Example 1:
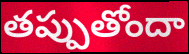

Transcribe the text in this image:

తప్పుతోందా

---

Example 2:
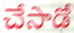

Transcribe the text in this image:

చేసాడో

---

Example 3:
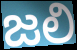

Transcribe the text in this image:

జలి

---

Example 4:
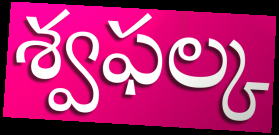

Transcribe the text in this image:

శ్వఫల్క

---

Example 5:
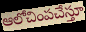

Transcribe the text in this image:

ఆలోచింపచేస్తూ